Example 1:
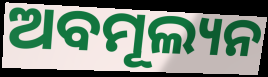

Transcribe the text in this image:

ଅବମୂଲ୍ୟନ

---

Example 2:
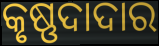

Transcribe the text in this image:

କୃଷ୍ଣଦାଦାର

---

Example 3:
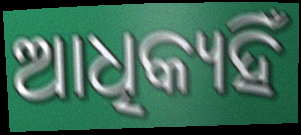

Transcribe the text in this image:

ଆଧିକ୍ୟହିଁ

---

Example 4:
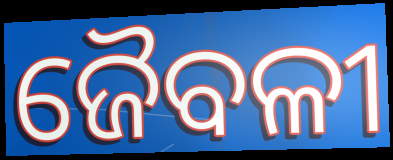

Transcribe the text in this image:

ଜୈବଳୀ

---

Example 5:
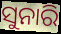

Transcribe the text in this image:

ସୁନାରି